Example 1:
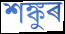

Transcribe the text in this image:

শঙ্কুৰ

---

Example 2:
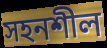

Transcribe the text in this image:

সহনশীল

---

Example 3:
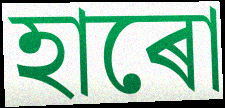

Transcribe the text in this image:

হাৰো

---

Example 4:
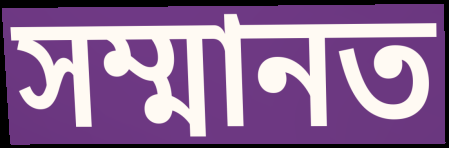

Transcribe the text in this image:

সম্মানত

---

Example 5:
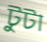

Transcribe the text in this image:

টুটা